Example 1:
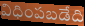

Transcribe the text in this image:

విధింపబడేది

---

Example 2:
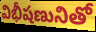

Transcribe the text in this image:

విభీషణునితో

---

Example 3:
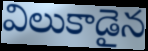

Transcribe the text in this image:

విలుకాడైన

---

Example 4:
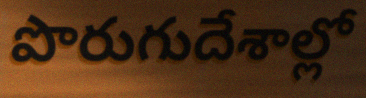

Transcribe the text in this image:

పొరుగుదేశాల్లో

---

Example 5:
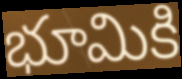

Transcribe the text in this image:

భూమికి